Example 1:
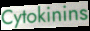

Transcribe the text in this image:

Cytokinins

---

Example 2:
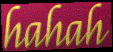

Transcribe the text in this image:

hahah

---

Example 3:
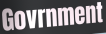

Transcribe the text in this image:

Govrnment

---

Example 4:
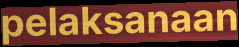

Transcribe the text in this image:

pelaksanaan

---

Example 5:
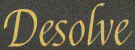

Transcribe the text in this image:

Desolve